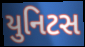
યુનિટસ